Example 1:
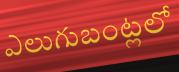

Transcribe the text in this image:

ఎలుగుబంట్లలో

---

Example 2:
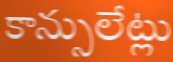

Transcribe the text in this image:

కాన్సులేట్లు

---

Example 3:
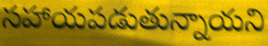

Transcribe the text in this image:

సహాయపడుతున్నాయని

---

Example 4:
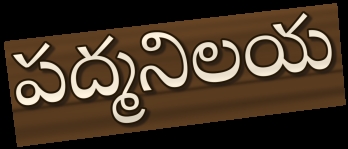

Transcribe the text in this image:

పద్మనిలయ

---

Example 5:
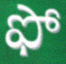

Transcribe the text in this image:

ఫో